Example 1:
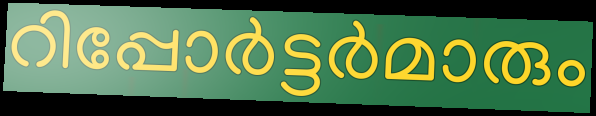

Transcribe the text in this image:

റിപ്പോർട്ടർമാരും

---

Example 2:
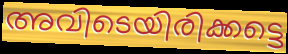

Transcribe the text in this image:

അവിടെയിരിക്കട്ടെ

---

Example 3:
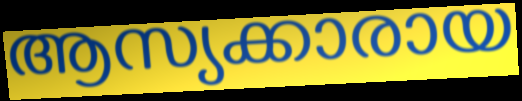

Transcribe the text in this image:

ആസ്യക്കാരായ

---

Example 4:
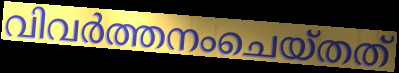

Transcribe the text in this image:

വിവർത്തനംചെയ്തത്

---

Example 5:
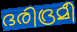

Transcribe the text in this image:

ദരിദ്രമീ